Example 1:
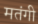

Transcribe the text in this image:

मतंगी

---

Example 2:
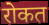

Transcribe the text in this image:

रोकत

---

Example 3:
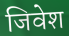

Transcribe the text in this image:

जिवेश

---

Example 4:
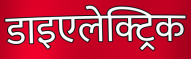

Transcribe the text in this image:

डाइएलेक्ट्रिक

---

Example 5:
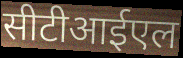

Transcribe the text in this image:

सीटीआईएल